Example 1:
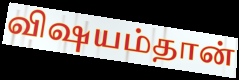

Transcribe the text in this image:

விஷயம்தான்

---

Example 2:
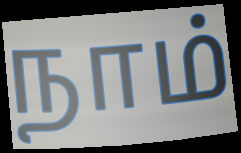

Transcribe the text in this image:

நாம்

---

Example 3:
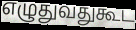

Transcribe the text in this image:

எழுதுவதுகூட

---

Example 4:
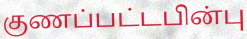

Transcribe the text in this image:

குணப்பட்டபின்பு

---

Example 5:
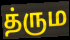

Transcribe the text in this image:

த்ரும